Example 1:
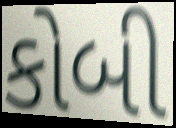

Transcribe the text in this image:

કોબી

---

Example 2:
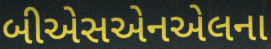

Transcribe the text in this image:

બીએસએનએલના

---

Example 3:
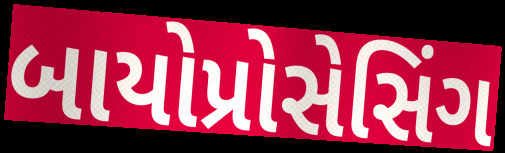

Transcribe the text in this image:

બાયોપ્રોસેસિંગ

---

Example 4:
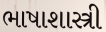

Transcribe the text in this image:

ભાષાશાસ્ત્રી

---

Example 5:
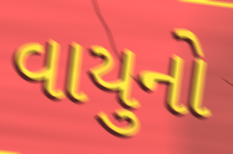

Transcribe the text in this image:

વાયુનો